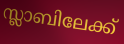
സ്ലാബിലേക്ക്